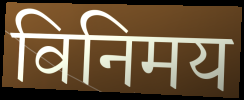
विनिमय